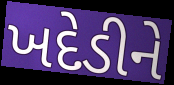
ખદેડીને